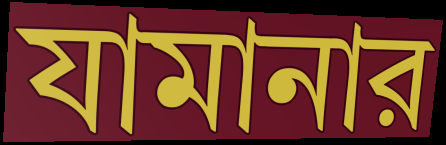
যামানার